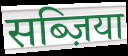
सब्ज़िया